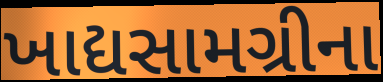
ખાદ્યસામગ્રીના